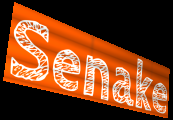
Senake